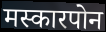
मस्कारपोन